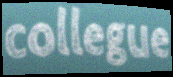
collegue